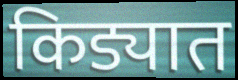
किड्यात